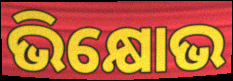
ଭିକ୍ଷୋଭ